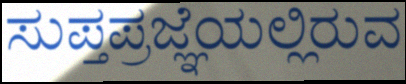
ಸುಪ್ತಪ್ರಜ್ಞೆಯಲ್ಲಿರುವ